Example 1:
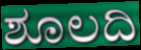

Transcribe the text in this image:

ಶೂಲದಿ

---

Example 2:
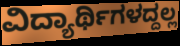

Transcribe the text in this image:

ವಿದ್ಯಾರ್ಥಿಗಳದ್ದಲ್ಲ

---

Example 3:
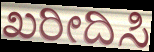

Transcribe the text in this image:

ಖರೀದಿಸಿ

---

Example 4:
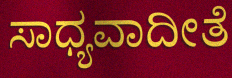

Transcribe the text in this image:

ಸಾಧ್ಯವಾದೀತೆ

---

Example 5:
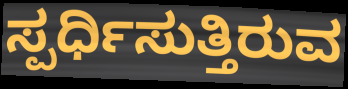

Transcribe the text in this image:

ಸ್ಪರ್ಧಿಸುತ್ತಿರುವ